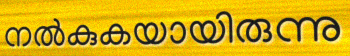
നൽകുകയായിരുന്നു